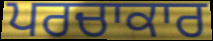
ਪਰਚਾਕਾਰ